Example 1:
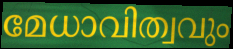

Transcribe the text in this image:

മേധാവിത്വവും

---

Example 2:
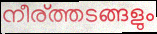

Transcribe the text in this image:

നീര്ത്തടങ്ങളും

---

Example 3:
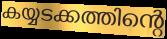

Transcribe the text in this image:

കയ്യടക്കത്തിന്റെ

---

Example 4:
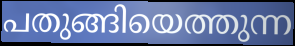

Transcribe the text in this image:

പതുങ്ങിയെത്തുന്ന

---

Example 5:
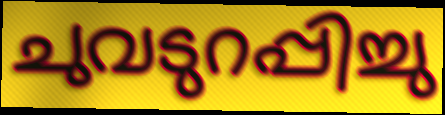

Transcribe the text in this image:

ചുവടുറപ്പിച്ചു